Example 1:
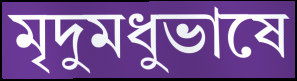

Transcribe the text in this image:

মৃদুমধুভাষে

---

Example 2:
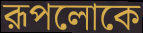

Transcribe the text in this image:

রূপলোকে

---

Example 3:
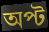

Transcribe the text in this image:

অপ্ট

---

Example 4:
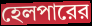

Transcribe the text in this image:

হেলপারের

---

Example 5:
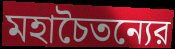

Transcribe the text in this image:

মহাচৈতন্যের